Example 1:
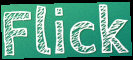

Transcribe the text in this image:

Flick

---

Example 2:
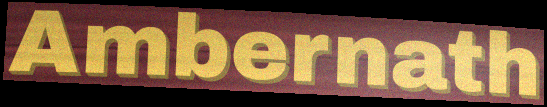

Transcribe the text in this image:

Ambernath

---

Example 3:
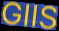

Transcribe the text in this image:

GIIS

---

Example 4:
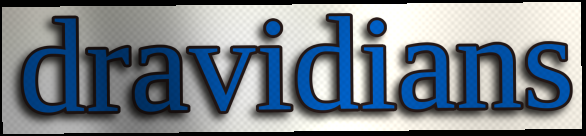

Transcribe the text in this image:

dravidians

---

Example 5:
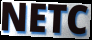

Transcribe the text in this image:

NETC